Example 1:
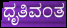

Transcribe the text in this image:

ಧೃತಿವಂತ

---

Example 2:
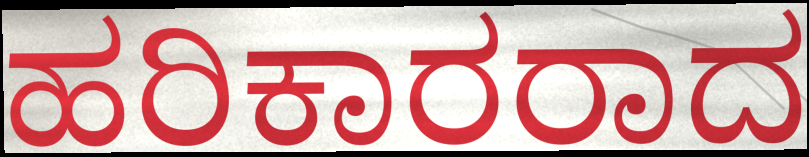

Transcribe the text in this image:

ಹರಿಕಾರರಾದ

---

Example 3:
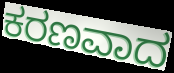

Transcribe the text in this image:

ಕರಣವಾದ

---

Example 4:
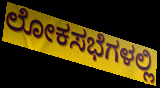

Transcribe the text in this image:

ಲೋಕಸಭೆಗಳಲ್ಲಿ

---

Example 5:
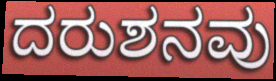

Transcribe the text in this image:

ದರುಶನವು